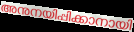
അനുനയിപ്പിക്കാനായി